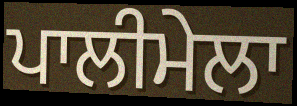
ਪਾਲੀਮੇਲਾ